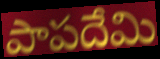
పాపదేమి